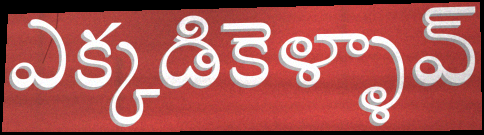
ఎక్కడికెళ్ళావ్